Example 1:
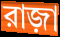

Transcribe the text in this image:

রাজ়া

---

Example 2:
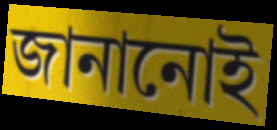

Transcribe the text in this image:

জানানোই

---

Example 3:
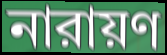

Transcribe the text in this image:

নারায়ণ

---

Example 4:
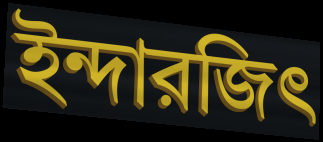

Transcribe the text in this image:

ইন্দারজিৎ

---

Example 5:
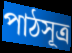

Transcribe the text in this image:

পাঠসূত্র